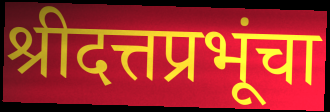
श्रीदत्तप्रभूंचा